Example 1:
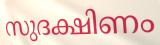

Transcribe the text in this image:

സുദക്ഷിണം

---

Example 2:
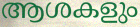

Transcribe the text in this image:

ആശകളും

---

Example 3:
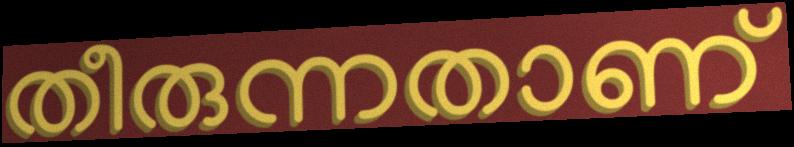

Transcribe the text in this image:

തീരുന്നതാണ്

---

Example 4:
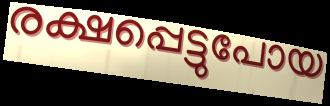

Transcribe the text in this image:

രക്ഷപ്പെട്ടുപോയ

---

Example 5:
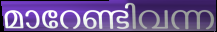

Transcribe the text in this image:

മാറേണ്ടിവന്ന